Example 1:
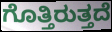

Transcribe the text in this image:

ಗೊತ್ತಿರುತ್ತದೆ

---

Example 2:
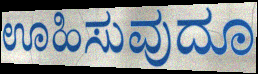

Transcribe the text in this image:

ಊಹಿಸುವುದೂ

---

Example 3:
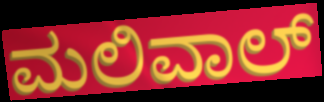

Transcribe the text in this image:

ಮಲಿವಾಲ್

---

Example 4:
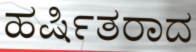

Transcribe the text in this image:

ಹರ್ಷಿತರಾದ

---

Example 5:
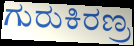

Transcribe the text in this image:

ಗುರುಕಿರಣ್ರ